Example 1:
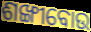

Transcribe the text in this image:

ଶଙ୍ଖୀବୋଉ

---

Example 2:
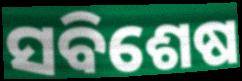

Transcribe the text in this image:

ସବିଶେଷ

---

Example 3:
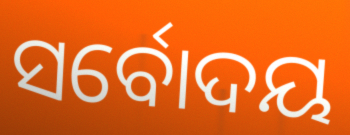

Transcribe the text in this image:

ସର୍ବୋଦୟ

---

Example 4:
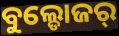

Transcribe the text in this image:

ବୁଲ୍ଡୋଜର୍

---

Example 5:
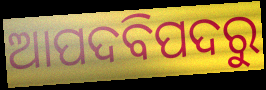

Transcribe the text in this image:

ଆପଦବିପଦରୁ